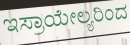
ಇಸ್ರಾಯೇಲ್ಯರಿಂದ